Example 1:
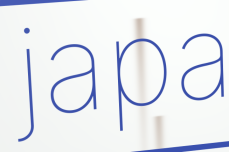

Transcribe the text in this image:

japa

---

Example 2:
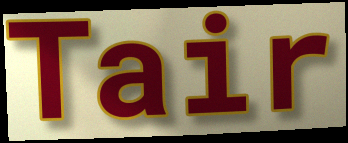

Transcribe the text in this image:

Tair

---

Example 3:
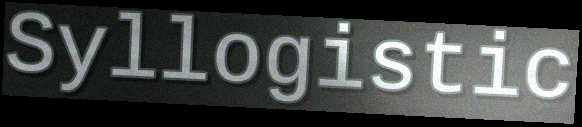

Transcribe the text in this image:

Syllogistic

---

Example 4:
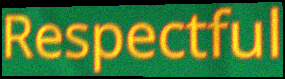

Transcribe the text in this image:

Respectful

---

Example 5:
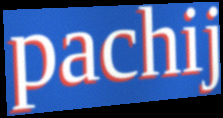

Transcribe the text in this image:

pachij